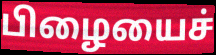
பிழையைச்